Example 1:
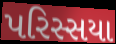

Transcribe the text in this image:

પરિસ્સયા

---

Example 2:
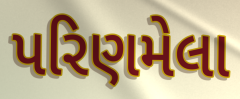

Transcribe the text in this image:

પરિણમેલા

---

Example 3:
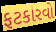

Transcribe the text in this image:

ફટકારવો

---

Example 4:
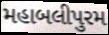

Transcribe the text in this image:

મહાબલીપુરમ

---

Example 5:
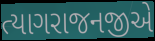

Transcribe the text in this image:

ત્યાગરાજનજીએ